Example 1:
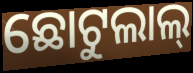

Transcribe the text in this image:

ଛୋଟୁଲାଲ୍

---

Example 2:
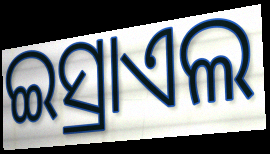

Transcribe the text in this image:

ଇସ୍ରାଏଲ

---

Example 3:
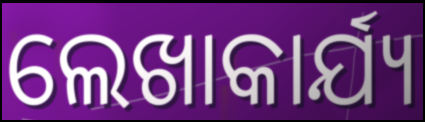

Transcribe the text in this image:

ଲେଖାକାର୍ଯ୍ୟ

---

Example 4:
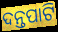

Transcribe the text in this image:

ଦନ୍ତପାଟି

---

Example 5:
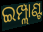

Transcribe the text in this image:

ଇମ୍ପ୍ଲାଣ୍ଟ